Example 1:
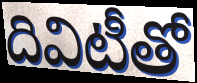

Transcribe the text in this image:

దివిటీతో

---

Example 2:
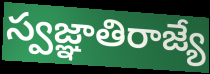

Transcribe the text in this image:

స్వజ్ఞాతిరాజ్యే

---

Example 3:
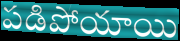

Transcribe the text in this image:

పడిపోయాయి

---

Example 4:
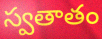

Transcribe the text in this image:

స్వతాతం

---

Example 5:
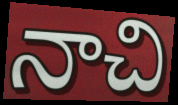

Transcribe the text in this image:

నాచి